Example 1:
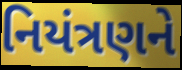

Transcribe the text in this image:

નિયંત્રણને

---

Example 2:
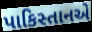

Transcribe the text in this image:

પાકિસ્તાનએ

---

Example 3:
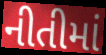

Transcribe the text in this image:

નીતીમાં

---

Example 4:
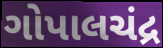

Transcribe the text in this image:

ગોપાલચંદ્ર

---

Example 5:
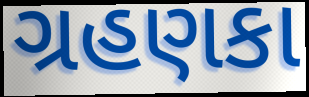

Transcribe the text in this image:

ગ્રહણકા